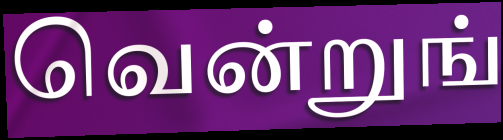
வென்றுங்